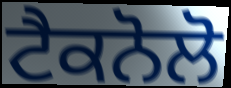
ਟੈਕਨੋਲੋ